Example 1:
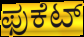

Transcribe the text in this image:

ಫುಕೆಟ್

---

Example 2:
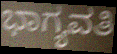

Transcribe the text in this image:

ಭಾಗ್ಯವತಿ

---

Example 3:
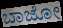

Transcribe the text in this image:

ಬಾಜೋ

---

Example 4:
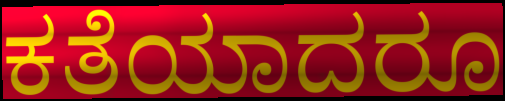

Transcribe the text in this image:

ಕತೆಯಾದರೂ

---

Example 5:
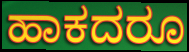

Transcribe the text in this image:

ಹಾಕದರೂ